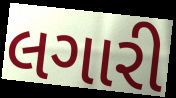
લગારી